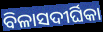
ବିଳାସଦୀର୍ଘିକା